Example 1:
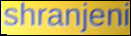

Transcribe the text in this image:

shranjeni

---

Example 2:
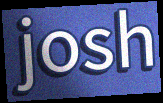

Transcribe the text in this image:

josh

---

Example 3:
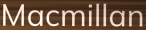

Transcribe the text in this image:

Macmillan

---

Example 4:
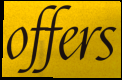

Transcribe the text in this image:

offers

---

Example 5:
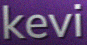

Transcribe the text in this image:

kevi